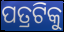
ପତ୍ରଟିକୁ